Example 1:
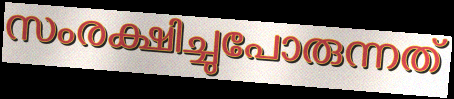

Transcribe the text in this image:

സംരക്ഷിച്ചുപോരുന്നത്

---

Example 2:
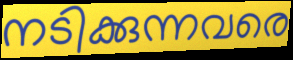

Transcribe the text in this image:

നടിക്കുന്നവരെ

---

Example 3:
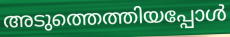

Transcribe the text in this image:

അടുത്തെത്തിയപ്പോൾ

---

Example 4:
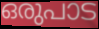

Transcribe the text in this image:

ഒരുപാട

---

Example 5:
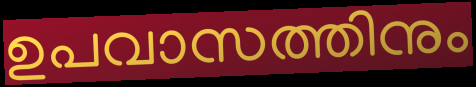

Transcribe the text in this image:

ഉപവാസത്തിനും